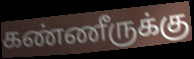
கண்ணீருக்கு